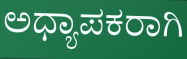
ಅಧ್ಯಾಪಕರಾಗಿ